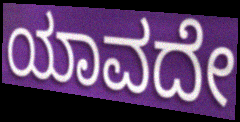
ಯಾವದೇ